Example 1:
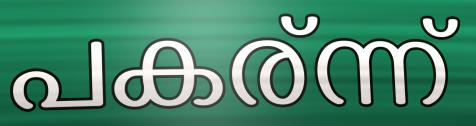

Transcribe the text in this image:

പകര്ന്ന്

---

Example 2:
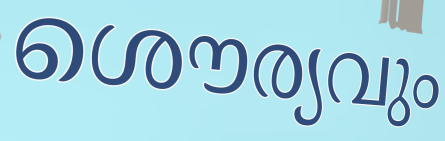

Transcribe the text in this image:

ശൌര്യവും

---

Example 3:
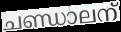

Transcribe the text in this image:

ചണ്ഡാലന്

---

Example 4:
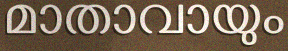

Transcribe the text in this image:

മാതാവായും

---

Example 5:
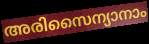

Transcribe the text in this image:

അരിസൈന്യാനാം